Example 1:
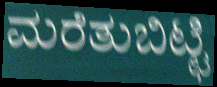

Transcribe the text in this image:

ಮರೆತುಬಿಟ್ಟಿ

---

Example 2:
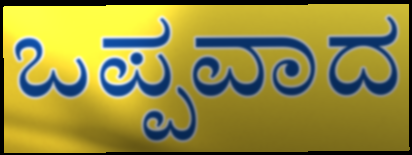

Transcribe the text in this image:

ಒಪ್ಪವಾದ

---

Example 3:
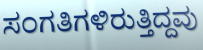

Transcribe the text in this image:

ಸಂಗತಿಗಳಿರುತ್ತಿದ್ದವು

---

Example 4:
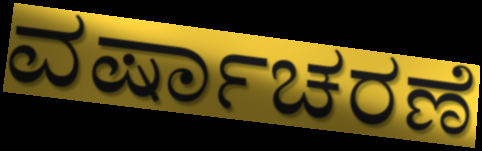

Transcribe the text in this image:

ವರ್ಷಾಚರಣೆ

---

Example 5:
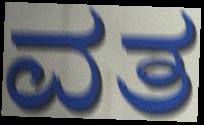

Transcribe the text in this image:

ವತ